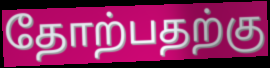
தோற்பதற்கு